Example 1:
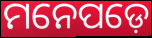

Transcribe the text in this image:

ମନେପଡ଼େ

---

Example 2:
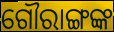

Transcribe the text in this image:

ଗୌରାଙ୍ଗଙ୍କ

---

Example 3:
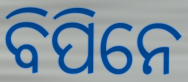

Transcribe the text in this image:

ବିପିନେ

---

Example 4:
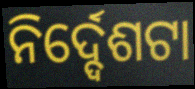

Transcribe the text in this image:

ନିର୍ଦ୍ଦେଶଟା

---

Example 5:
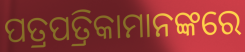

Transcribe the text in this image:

ପତ୍ରପତ୍ରିକାମାନଙ୍କରେ